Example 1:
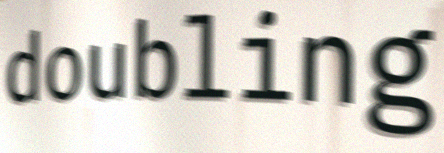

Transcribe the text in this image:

doubling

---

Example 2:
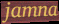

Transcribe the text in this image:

jamna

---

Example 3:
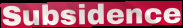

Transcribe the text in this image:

Subsidence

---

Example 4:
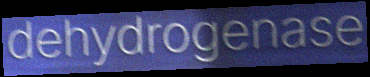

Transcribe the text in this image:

dehydrogenase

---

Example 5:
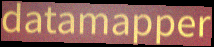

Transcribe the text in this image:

datamapper